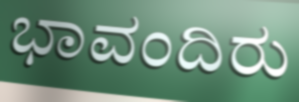
ಭಾವಂದಿರು